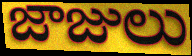
జాజులు